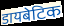
डायबेटिक